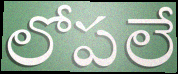
లోపలే